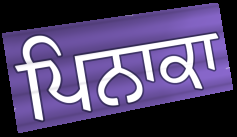
ਪਿਨਾਕਾ